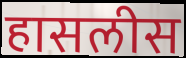
हासलीस